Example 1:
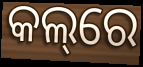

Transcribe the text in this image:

କଲ୍‌ରେ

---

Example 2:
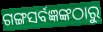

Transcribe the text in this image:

ଗଙ୍ଗସର୍ବଜ୍ଞଙ୍କଠାରୁ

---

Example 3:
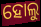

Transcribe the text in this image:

ହୋଲୁ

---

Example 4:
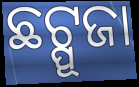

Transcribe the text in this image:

ଛଟ୍ପୂଜା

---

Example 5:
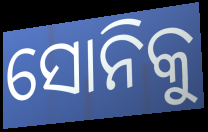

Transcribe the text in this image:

ସୋନିକୁ